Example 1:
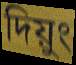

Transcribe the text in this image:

দিয়ুং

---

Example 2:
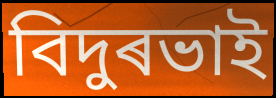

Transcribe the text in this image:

বিদুৰভাই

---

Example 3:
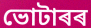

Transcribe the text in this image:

ভোটাৰৰ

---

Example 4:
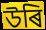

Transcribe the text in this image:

উৰি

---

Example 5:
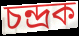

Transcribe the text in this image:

চন্দ্ৰক